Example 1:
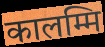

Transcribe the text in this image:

कालम्मि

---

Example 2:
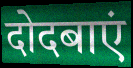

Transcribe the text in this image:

दोदबाएं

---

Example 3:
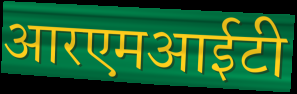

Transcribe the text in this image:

आरएमआईटी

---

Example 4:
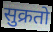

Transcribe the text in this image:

सुक्रतो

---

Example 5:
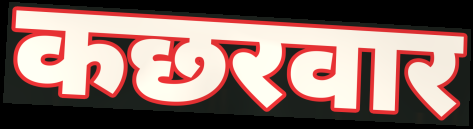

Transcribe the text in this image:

कछरवार